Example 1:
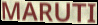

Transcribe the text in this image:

MARUTI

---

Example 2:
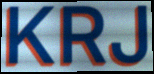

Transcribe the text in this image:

KRJ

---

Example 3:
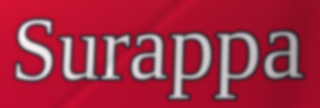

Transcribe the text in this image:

Surappa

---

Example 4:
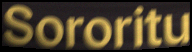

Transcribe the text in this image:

Sororitu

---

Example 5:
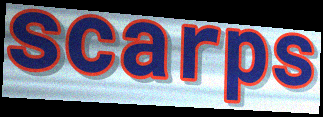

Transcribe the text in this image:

scarps